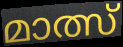
മാത്സ്